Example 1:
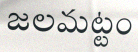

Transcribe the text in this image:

జలమట్టం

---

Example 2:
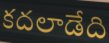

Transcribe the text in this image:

కదలాడేది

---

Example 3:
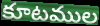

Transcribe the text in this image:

కూటముల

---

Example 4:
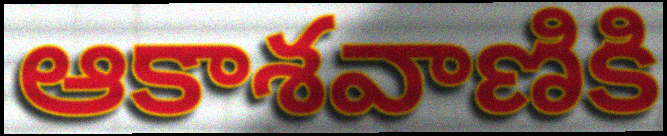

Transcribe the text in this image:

ఆకాశవాణికి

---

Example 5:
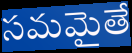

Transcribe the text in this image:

సమమైతే